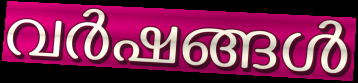
വർഷങ്ങൾ